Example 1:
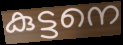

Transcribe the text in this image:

കുട്ടനെ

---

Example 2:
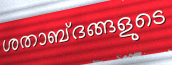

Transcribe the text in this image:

ശതാബ്ദങ്ങളുടെ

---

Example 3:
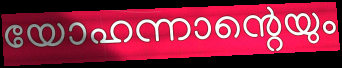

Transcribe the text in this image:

യോഹന്നാന്റെയും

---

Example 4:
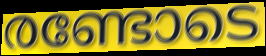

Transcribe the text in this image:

രണ്ടോടെ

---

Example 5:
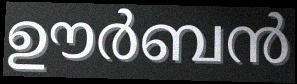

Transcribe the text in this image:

ഊർബൻ